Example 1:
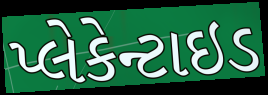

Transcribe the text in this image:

પ્લેકેન્ટાઇડ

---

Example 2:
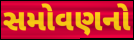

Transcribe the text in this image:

સમોવણનો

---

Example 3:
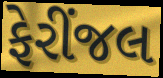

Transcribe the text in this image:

ફેરીંજલ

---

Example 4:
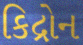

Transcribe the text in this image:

કિદ્રોન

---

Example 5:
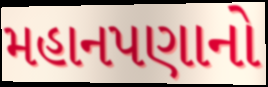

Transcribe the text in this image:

મહાનપણાનો